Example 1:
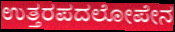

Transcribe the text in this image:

ಉತ್ತರಪದಲೋಪೇನ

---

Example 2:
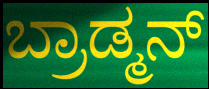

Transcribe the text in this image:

ಬ್ರಾಡ್ಮನ್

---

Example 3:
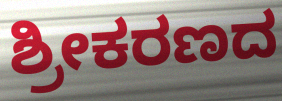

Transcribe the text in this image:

ಶ್ರೀಕರಣದ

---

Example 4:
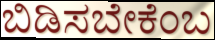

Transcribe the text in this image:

ಬಿಡಿಸಬೇಕೆಂಬ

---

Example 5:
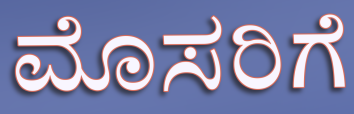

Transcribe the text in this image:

ಮೊಸರಿಗೆ